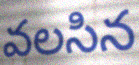
వలసిన